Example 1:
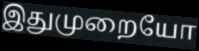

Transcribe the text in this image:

இதுமுறையோ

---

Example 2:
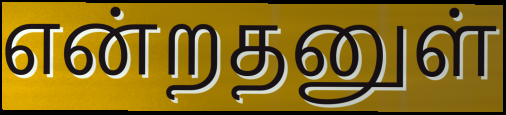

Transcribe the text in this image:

என்றதனுள்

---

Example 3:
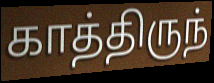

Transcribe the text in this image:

காத்திருந்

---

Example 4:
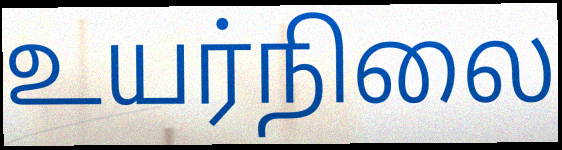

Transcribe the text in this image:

உயர்நிலை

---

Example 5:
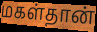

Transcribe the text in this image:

மகள்தான்